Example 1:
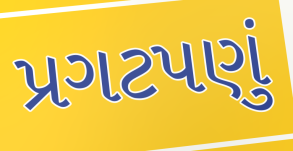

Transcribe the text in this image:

પ્રગટપણું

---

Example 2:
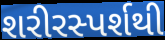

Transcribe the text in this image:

શરીરસ્પર્શથી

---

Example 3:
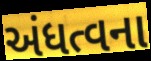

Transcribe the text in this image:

અંધત્વના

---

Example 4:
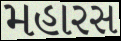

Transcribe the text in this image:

મહારસ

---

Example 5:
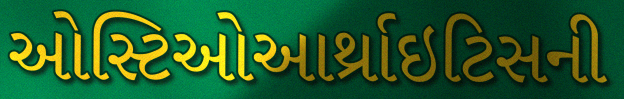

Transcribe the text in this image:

ઓસ્ટિઓઆર્થ્રાઇટિસની